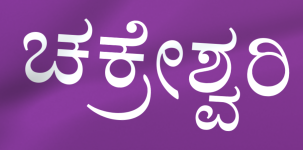
ಚಕ್ರೇಶ್ವರಿ